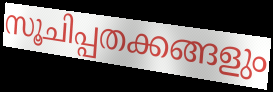
സൂചിപ്പതക്കങ്ങളും